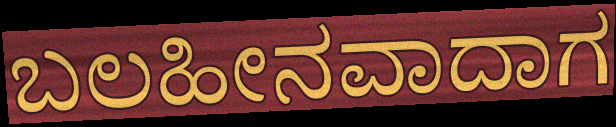
ಬಲಹೀನವಾದಾಗ